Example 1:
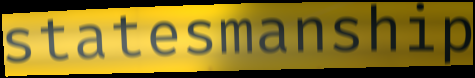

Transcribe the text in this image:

statesmanship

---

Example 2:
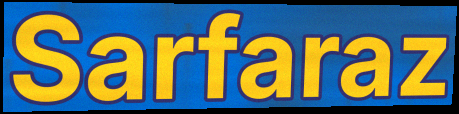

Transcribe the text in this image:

Sarfaraz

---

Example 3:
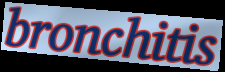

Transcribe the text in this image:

bronchitis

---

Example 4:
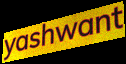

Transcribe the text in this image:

yashwant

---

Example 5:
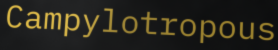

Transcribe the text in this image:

Campylotropous